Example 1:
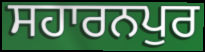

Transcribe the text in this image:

ਸਹਾਰਨਪੁਰ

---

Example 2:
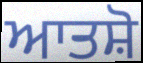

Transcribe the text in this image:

ਆਤਸ਼ੋ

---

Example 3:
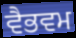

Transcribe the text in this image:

ਵੈਭਵਮ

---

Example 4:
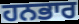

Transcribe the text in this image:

ਹਨਭਾਰ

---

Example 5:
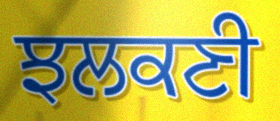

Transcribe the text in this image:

ਝਲਕਣੀ